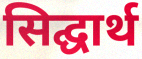
सिद्घार्थ